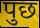
पुछ